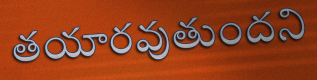
తయారవుతుందని